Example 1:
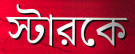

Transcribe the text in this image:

স্টারকে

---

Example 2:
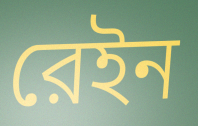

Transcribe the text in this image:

রেইন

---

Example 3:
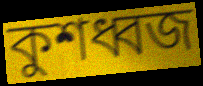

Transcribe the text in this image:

কুশধ্বজ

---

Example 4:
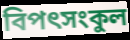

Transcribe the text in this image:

বিপৎসংকুল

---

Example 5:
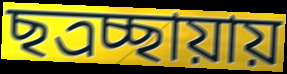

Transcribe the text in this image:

ছত্রচ্ছায়ায়